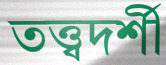
তত্ত্বদর্শী